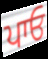
ਪਾਓ